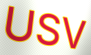
USV